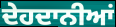
ਦੇਹਦਾਨੀਆਂ